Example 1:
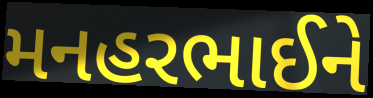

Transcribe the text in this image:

મનહરભાઈને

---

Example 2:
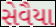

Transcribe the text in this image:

સેવૈયા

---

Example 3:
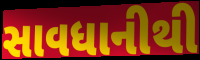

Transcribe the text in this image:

સાવધાનીથી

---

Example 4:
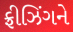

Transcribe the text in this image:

ફ્રીઝિંગને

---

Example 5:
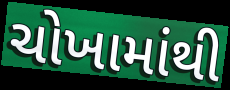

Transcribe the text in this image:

ચોખામાંથી